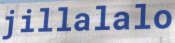
jillalalo